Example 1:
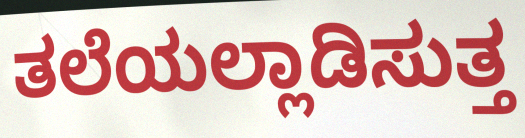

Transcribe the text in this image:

ತಲೆಯಲ್ಲಾಡಿಸುತ್ತ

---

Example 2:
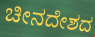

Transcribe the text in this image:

ಚೀನದೇಶದ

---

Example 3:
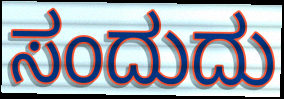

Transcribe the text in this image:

ಸಂದುದು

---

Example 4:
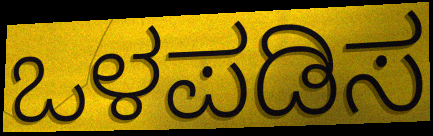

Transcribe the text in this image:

ಒಳಪಡಿಸ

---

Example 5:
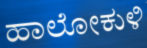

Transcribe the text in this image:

ಹಾಲೋಕುಳಿ